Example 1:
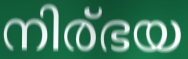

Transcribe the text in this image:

നിര്ഭയ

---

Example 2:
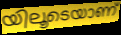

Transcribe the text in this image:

യിലൂടെയാണ്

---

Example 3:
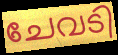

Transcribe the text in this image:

ചേവടി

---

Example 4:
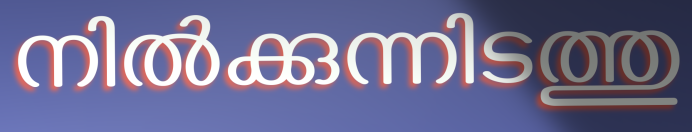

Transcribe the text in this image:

നിൽക്കുന്നിടത്തു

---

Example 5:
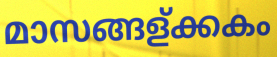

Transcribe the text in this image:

മാസങ്ങള്ക്കകം